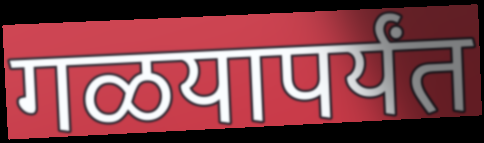
गळयापर्यंत